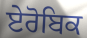
ਏਰੋਬਿਕ